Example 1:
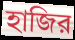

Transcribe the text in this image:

হাজির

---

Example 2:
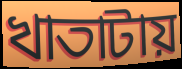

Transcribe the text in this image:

খাতাটায়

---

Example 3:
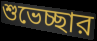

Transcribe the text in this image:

শুভেচ্ছার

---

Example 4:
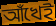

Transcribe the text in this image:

আঁখেই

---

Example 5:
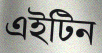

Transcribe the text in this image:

এইটিন